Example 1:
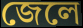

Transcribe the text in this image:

জেলে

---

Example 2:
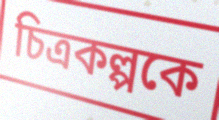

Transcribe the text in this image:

চিত্রকল্পকে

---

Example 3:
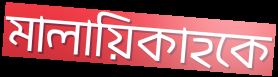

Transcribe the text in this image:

মালায়িকাহকে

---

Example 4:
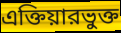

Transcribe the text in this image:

এক্তিয়ারভুক্ত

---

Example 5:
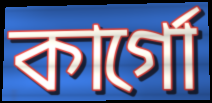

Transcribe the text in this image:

কার্গো